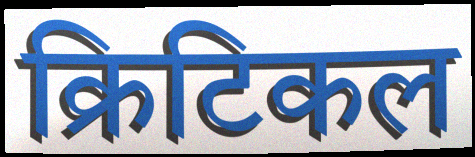
क्रिटिकल